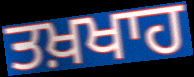
ਤਖ਼ਖਾਹ